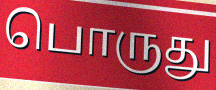
பொருது